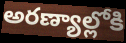
అరణ్యాల్లోకి